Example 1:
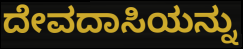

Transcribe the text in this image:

ದೇವದಾಸಿಯನ್ನು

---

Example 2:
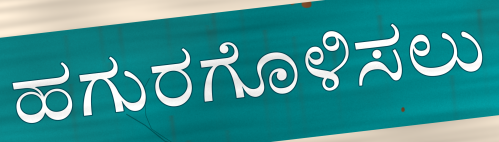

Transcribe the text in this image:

ಹಗುರಗೊಳಿಸಲು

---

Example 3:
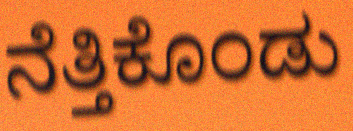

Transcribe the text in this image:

ನೆತ್ತಿಕೊಂಡು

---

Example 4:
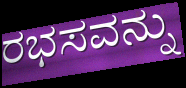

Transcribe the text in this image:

ರಭಸವನ್ನು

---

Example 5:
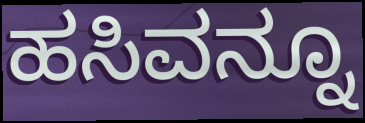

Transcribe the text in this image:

ಹಸಿವನ್ನೂ